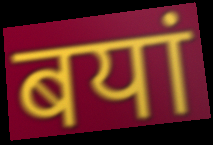
बयां